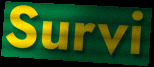
Survi